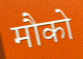
मौको